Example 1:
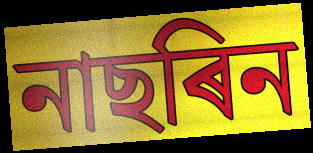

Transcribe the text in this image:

নাছৰিন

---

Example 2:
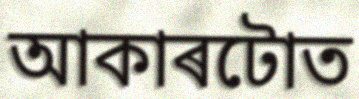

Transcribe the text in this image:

আকাৰটোত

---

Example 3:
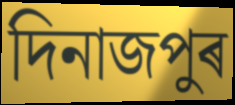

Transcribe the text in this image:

দিনাজপুৰ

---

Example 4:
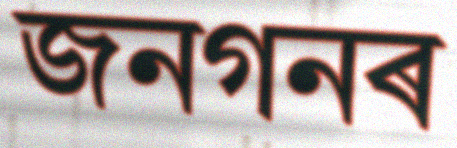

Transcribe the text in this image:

জনগনৰ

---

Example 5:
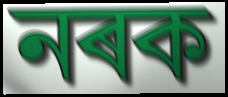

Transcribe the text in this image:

নৰক